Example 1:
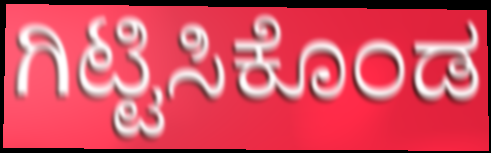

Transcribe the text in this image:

ಗಿಟ್ಟಿಸಿಕೊಂಡ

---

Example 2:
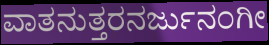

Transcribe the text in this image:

ವಾತನುತ್ತರನರ್ಜುನಂಗೀ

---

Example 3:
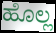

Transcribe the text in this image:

ಹೊಲ್ಲ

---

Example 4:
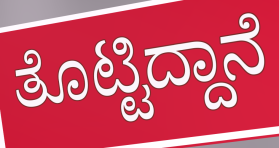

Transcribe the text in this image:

ತೊಟ್ಟಿದ್ದಾನೆ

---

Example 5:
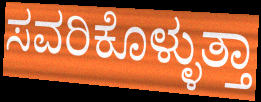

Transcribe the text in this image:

ಸವರಿಕೊಳ್ಳುತ್ತಾ